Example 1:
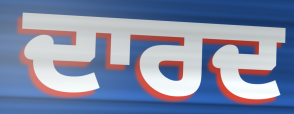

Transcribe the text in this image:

ਦਾਰਦ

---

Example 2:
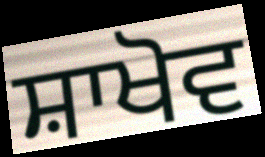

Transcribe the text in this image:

ਸ਼ਾਖੋਵ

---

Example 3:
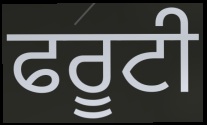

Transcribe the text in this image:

ਫਰੂਟੀ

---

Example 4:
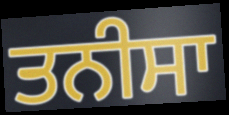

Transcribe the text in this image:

ਤਨੀਸਾ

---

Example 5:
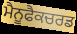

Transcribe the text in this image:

ਮੈਨੂਫੈਕਚਰਡ